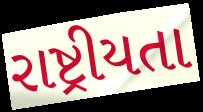
રાષ્ટ્રીયતા